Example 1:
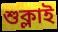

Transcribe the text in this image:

শুক্লাই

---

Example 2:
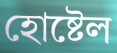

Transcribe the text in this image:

হোষ্টেল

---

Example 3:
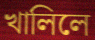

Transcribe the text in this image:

খালিলে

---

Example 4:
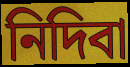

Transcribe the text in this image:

নিদিবা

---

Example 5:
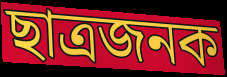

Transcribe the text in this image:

ছাত্ৰজনক